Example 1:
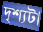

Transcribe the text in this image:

দৃশ্যটা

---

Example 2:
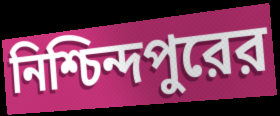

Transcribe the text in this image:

নিশ্চিন্দপুরের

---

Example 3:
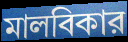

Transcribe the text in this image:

মালবিকার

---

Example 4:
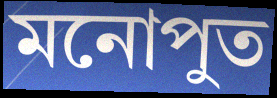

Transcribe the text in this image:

মনোপুত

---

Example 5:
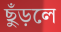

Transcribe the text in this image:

ছুঁড়লে